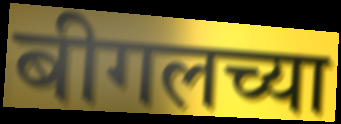
बीगलच्या